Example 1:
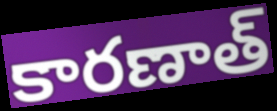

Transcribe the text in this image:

కారణాత్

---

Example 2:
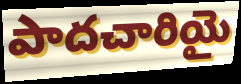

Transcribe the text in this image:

పాదచారియై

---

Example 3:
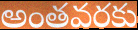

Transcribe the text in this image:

అంతవరకు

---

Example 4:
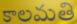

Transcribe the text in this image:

కాలమతి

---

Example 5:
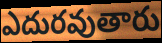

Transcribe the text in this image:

ఎదురవుతారు